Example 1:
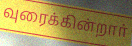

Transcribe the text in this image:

வுரைக்கின்றார்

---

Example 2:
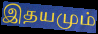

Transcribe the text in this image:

இதயமும்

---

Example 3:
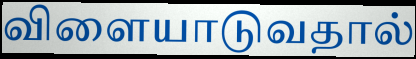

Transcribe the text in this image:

விளையாடுவதால்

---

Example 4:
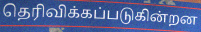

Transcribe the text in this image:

தெரிவிக்கப்படுகின்றன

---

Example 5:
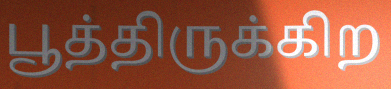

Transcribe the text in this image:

பூத்திருக்கிற